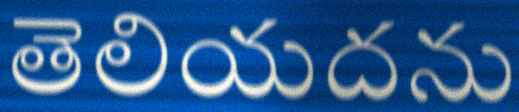
తెలియదను